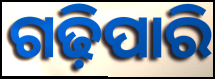
ଗଢ଼ିପାରି